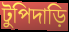
টুপিদাড়ি